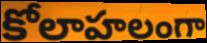
కోలాహలంగా